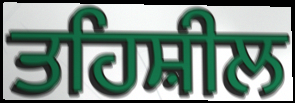
ਤਹਿਸ਼ੀਲ